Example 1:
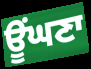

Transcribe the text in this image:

ਊਂਘਣਾ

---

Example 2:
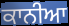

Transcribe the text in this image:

ਕਾਨੀਆ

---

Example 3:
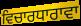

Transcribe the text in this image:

ਵਿਚਾਰਧਾਰਾਵਾ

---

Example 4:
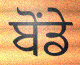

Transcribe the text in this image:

ਬੋਂਡੇ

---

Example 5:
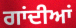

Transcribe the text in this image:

ਗਾਂਦੀਆਂ